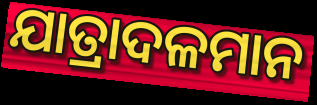
ଯାତ୍ରାଦଳମାନ